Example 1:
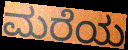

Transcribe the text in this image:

ಮರೆಯ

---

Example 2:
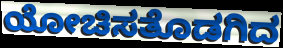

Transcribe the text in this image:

ಯೋಚಿಸತೊಡಗಿದ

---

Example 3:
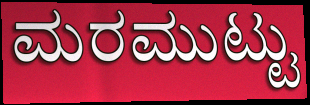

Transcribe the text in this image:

ಮರಮುಟ್ಟು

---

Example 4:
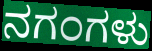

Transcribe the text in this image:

ನಗಂಗಳು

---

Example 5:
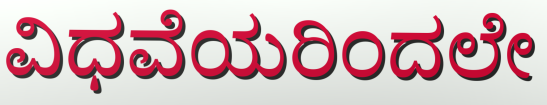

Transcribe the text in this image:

ವಿಧವೆಯರಿಂದಲೇ